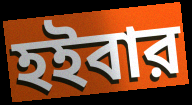
হইবার